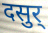
दसुर्